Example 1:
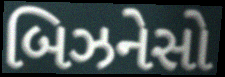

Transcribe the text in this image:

બિઝનેસો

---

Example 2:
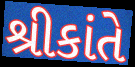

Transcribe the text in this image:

શ્રીકાંતે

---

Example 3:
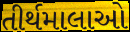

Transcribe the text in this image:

તીર્થમાલાઓ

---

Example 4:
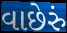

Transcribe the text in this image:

વાછેરું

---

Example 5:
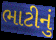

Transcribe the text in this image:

ભાટીનું